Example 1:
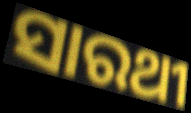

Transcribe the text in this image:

ସାରଥୀ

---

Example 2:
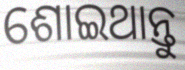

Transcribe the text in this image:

ଶୋଇଥାନ୍ତୁ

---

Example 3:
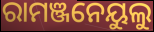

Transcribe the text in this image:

ରାମଞ୍ଜନେୟୁଲୁ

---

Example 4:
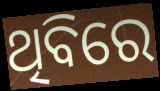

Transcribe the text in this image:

ଥିବିରେ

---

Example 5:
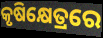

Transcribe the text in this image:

କୃଷିକ୍ଷେତ୍ରରେ